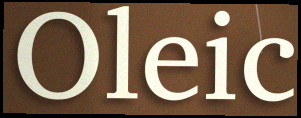
Oleic